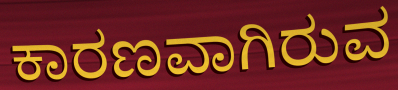
ಕಾರಣವಾಗಿರುವ